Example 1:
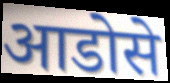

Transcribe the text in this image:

आडोसे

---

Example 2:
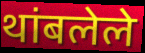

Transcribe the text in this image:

थांबलेले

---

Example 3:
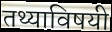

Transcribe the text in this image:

तथ्याविषयी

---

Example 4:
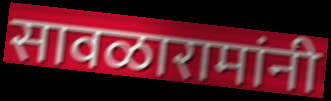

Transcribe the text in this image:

सावळारामांनी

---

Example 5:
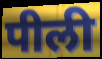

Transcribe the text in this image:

पीली